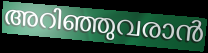
അറിഞ്ഞുവരാൻ